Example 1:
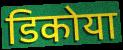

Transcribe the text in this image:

डिकोया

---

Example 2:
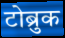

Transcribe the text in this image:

टोब्रुक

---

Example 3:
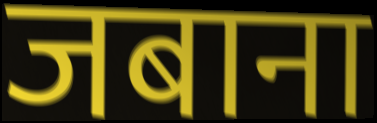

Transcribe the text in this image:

जबाना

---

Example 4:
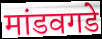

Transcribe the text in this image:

मांडवगडे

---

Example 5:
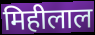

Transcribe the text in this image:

मिहीलाल